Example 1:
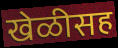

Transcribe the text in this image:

खेळीसह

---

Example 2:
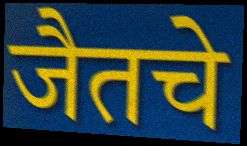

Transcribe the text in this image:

जैतचे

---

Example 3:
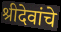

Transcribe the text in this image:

श्रीदेवांचे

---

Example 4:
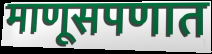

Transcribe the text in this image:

माणूसपणात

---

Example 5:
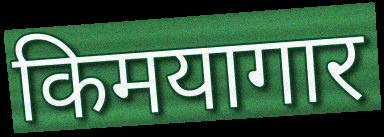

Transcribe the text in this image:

किमयागार